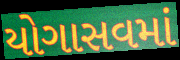
યોગાસવમાં